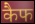
कैफ